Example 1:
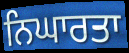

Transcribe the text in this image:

ਨਿਘਾਰਤਾ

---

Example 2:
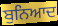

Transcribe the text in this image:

ਬੁਨਿਆਦ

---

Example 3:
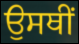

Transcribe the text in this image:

ਉਸਥੀਂ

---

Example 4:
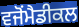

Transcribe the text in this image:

ਵਜੋਂਮੈਡੀਕਲ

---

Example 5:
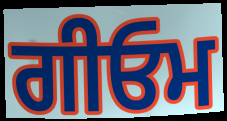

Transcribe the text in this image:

ਗੀਓਮ